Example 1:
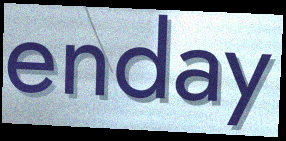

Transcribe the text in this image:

enday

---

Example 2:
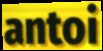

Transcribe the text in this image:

antoi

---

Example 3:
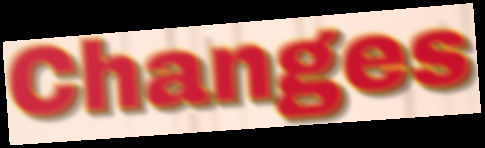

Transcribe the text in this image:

Changes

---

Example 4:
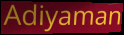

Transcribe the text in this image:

Adiyaman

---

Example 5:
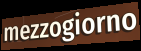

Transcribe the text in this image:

mezzogiorno